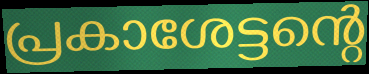
പ്രകാശേട്ടന്റെ